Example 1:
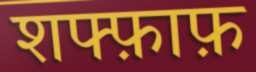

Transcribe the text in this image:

शफ्फ़ाफ़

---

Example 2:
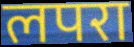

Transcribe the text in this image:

लपरा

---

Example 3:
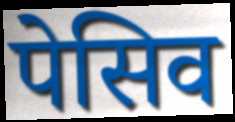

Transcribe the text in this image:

पेसिव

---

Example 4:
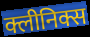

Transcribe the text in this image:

क्लीनिक्स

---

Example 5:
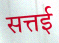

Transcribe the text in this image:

सत्तई